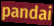
pandai